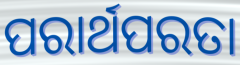
ପରାର୍ଥପରତା